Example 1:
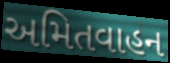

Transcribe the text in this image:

અમિતવાહન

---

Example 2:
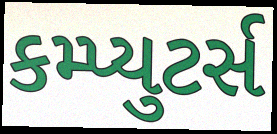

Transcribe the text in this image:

કમ્પ્યુટર્સ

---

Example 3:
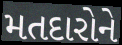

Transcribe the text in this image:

મતદારોને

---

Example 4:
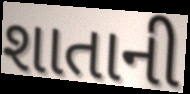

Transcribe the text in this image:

શાતાની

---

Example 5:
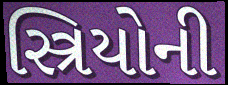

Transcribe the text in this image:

સ્ત્રિયોની